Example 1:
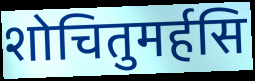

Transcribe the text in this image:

शोचितुमर्हसि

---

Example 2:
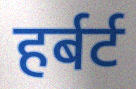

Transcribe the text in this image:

हर्बर्ट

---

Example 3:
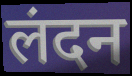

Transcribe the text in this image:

लंदन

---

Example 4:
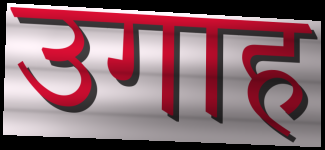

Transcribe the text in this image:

उगाह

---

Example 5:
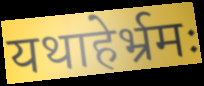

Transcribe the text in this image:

यथाहेर्भ्रमः